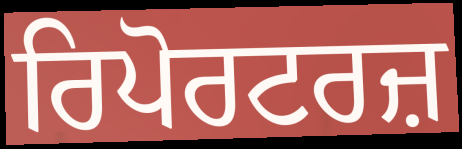
ਰਿਪੋਰਟਰਜ਼